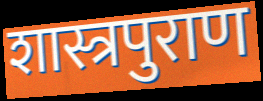
शास्त्रपुराण